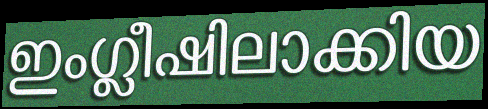
ഇംഗ്ലീഷിലാക്കിയ